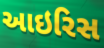
આઇરિસ